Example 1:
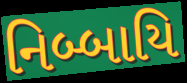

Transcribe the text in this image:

નિબ્બાયિ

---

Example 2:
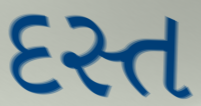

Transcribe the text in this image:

દસ્ત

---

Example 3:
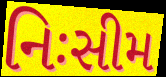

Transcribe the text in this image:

નિઃસીમ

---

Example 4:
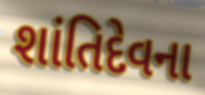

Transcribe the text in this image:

શાંતિદેવના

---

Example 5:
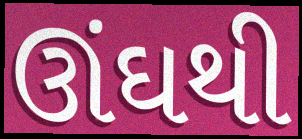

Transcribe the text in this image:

ઊંઘથી